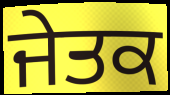
ਜੇਤਕ